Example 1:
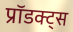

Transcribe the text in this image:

प्रॉडक्ट्स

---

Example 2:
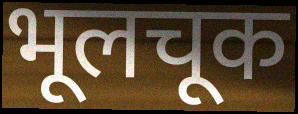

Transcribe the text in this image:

भूलचूक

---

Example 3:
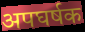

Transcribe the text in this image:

अपघर्षक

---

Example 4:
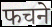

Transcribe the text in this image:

फचने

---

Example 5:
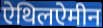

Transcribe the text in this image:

ऐथिलऐमीन